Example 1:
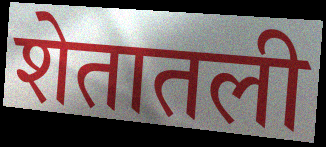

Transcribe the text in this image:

शेतातली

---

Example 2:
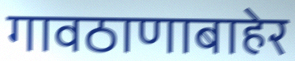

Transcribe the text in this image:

गावठाणाबाहेर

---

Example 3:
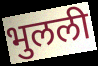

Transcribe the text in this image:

भुलली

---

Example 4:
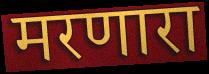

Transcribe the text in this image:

मरणारा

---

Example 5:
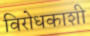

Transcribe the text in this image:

विरोधकाशी